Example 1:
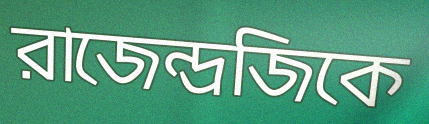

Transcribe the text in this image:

রাজেন্দ্রজিকে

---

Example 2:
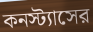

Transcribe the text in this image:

কনস্ট্যাসের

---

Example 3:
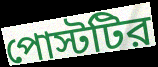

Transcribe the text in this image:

পোস্টটির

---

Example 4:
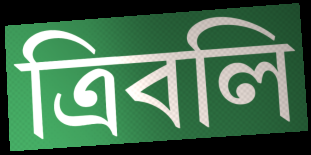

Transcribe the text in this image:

ত্রিবলি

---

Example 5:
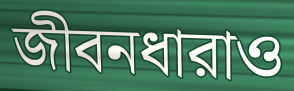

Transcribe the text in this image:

জীবনধারাও